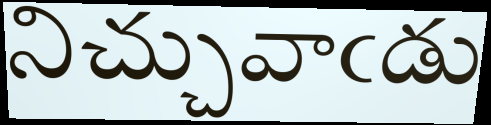
నిచ్చువాఁడు